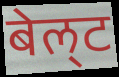
बेल्ट